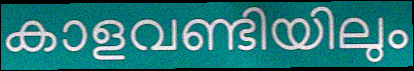
കാളവണ്ടിയിലും